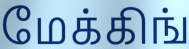
மேக்கிங்